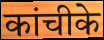
कांचीके